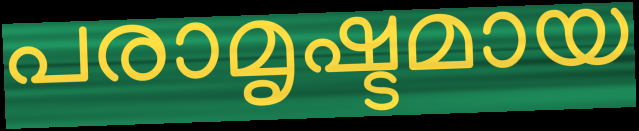
പരാമൃഷ്ടമായ